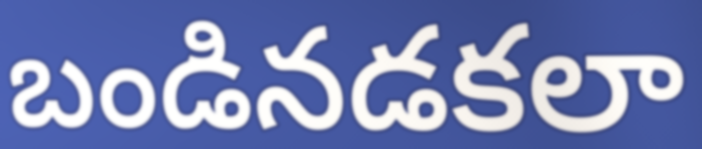
బండినడకలా